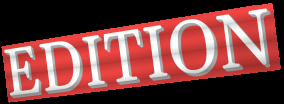
EDITION